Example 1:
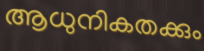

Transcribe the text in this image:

ആധുനികതക്കും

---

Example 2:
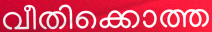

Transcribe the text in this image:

വീതിക്കൊത്ത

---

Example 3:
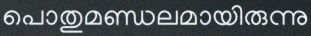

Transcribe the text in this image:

പൊതുമണ്ഡലമായിരുന്നു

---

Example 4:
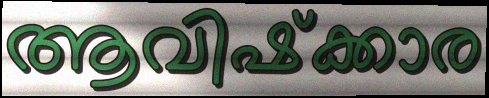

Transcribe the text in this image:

ആവിഷ്‌ക്കാര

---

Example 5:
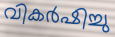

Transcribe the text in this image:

വികർഷിച്ചു